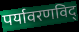
पर्यावरणविद्